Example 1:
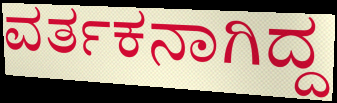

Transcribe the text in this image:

ವರ್ತಕನಾಗಿದ್ದ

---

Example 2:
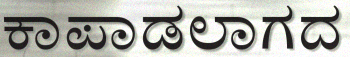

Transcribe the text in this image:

ಕಾಪಾಡಲಾಗದ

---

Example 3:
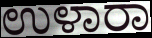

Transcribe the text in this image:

ಉಳಾರಾ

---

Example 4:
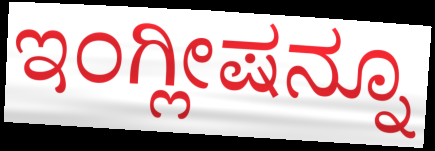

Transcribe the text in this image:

ಇಂಗ್ಲೀಷನ್ನೂ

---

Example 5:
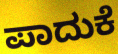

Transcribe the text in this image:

ಪಾದುಕೆ